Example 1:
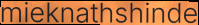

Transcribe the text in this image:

mieknathshinde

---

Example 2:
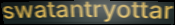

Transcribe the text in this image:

swatantryottar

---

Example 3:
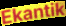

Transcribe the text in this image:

Ekantik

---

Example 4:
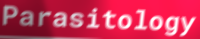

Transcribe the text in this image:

Parasitology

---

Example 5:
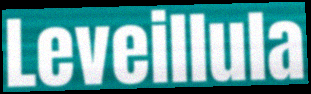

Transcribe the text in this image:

Leveillula